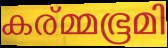
കര്മ്മഭൂമി